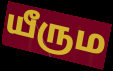
யீரும